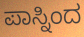
ಪಾಸ್ನಿಂದ